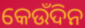
କେଉଁଦିନ